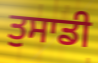
ਤੁਸਾਡੀ